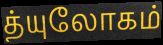
த்யுலோகம்